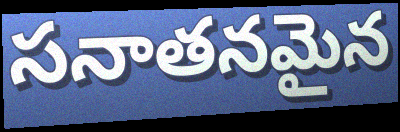
సనాతనమైన